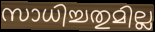
സാധിച്ചതുമില്ല